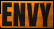
ENVY